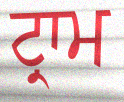
ਟ੍ਰਾਮ